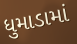
ધુમાડામાં